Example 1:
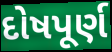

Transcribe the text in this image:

દોષપૂર્ણ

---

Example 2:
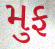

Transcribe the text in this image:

મુફ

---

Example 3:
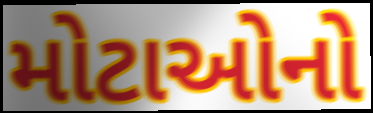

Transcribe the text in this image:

મોટાઓનો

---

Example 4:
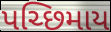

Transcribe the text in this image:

પચ્છિમાય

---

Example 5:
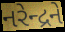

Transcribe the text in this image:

નરેન્દ્રને